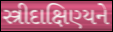
સ્ત્રીદાક્ષિણ્યને